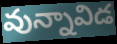
వున్నావిడ